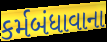
કર્મબંધાવાના